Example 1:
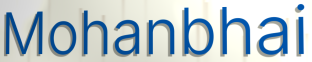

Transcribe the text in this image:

Mohanbhai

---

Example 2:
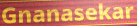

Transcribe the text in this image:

Gnanasekar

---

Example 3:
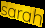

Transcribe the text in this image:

sarah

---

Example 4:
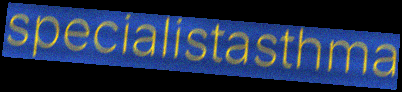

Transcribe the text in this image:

specialistasthma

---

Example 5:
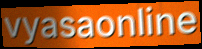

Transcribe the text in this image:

vyasaonline